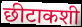
छीटाकशी